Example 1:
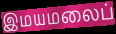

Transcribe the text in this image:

இமயமலைப்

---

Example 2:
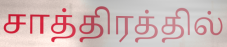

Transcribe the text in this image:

சாத்திரத்தில்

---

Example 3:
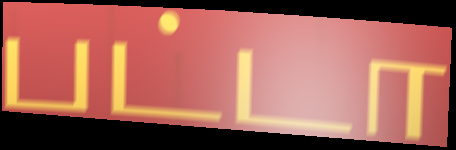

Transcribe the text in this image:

பட்டா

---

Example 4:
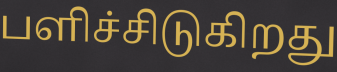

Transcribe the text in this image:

பளிச்சிடுகிறது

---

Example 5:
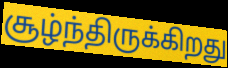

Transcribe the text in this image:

சூழ்ந்திருக்கிறது